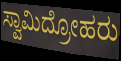
ಸ್ವಾಮಿದ್ರೋಹರು